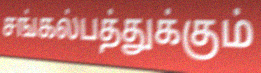
சங்கல்பத்துக்கும்